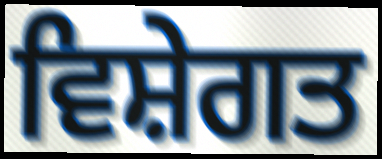
ਵਿਸ਼ੇਗਤ